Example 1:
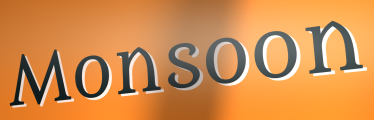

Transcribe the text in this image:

Monsoon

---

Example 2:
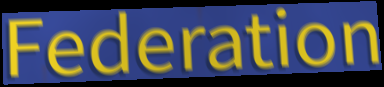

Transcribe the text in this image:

Federation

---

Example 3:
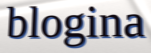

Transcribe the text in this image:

blogina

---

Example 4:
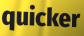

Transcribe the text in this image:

quicker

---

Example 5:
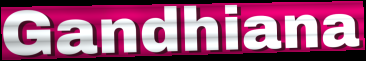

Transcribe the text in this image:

Gandhiana